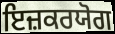
ਇਜ਼ਕਰਯੋਗ